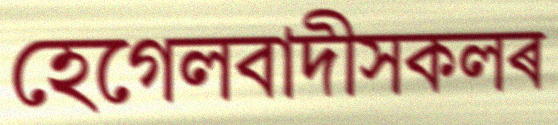
হেগেলবাদীসকলৰ